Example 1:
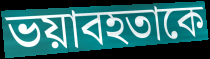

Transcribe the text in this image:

ভয়াবহতাকে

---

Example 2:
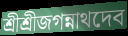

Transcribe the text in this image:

শ্রীশ্রীজগন্নাথদেব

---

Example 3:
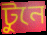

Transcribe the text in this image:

টুনে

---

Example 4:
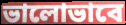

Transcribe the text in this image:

ভালোভাবে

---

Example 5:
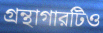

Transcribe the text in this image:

গ্রন্থাগারটিও